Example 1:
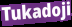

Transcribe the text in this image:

Tukadoji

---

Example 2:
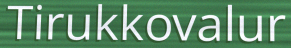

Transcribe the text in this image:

Tirukkovalur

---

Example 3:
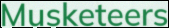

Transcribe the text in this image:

Musketeers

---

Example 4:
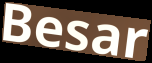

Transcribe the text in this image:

Besar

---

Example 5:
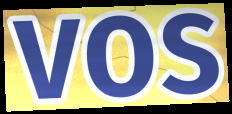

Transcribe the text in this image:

vos